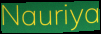
Nauriya